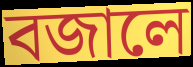
বজালে